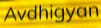
Avdhigyan